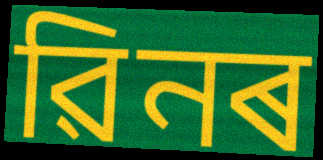
ৱিনৰ